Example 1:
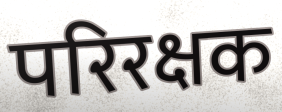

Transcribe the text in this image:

परिरक्षक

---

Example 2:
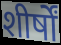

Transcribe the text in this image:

शीर्षों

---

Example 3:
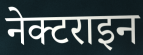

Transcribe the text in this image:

नेक्टराइन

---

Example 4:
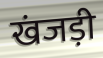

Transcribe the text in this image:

खंजड़ी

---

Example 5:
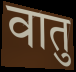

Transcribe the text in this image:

वातु